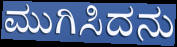
ಮುಗಿಸಿದನು